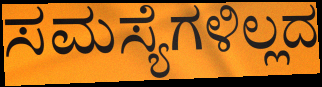
ಸಮಸ್ಯೆಗಳಿಲ್ಲದ